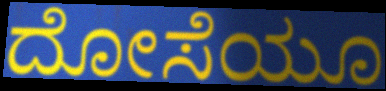
ದೋಸೆಯೂ